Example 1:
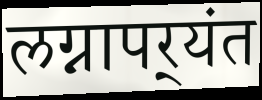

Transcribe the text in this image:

लग्नापर्यंत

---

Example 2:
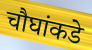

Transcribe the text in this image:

चौघांकडे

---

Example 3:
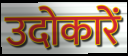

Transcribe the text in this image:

उदोकारें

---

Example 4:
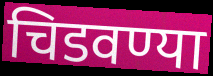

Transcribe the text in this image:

चिडवण्या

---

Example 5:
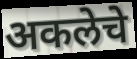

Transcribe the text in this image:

अकलेचे